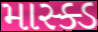
માસ્ક્ડ